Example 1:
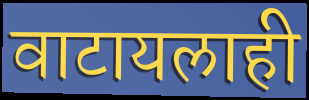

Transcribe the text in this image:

वाटायलाही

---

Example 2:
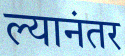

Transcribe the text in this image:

ल्यानंतर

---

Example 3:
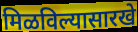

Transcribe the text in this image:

मिळविल्यासारखे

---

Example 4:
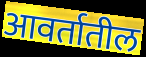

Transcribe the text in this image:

आवर्तातील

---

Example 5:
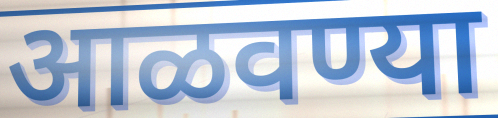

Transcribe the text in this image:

आळवण्या